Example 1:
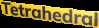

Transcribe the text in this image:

Tetrahedral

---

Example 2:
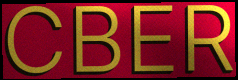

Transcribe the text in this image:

CBER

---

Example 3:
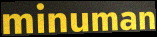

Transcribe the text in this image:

minuman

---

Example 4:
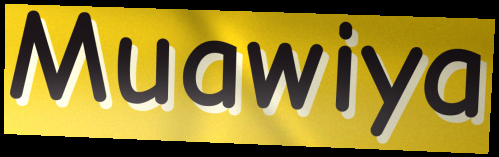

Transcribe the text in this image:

Muawiya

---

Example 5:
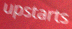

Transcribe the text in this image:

upstarts